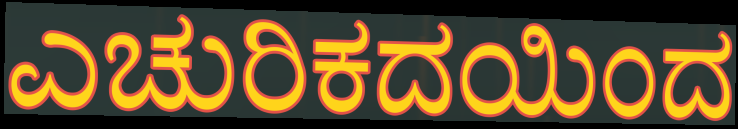
ಎಚುರಿಕದಯಿಂದ